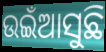
ଉଇଁଆସୁଛି